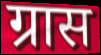
ग्रास